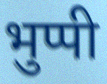
भुप्पी